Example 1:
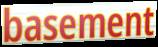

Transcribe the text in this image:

basement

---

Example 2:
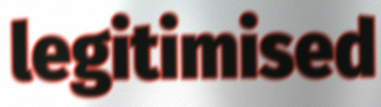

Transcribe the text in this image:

legitimised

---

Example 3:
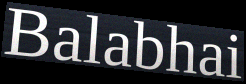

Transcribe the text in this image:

Balabhai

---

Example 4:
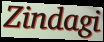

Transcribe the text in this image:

Zindagi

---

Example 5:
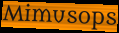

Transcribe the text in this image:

Mimusops